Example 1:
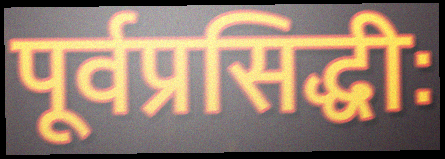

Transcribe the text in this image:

पूर्वप्रसिद्धीः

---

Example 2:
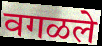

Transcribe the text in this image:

वगळले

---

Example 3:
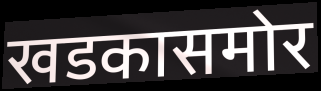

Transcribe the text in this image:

खडकासमोर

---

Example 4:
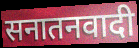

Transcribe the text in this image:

सनातनवादी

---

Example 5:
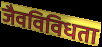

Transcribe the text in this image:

जैवविविधता